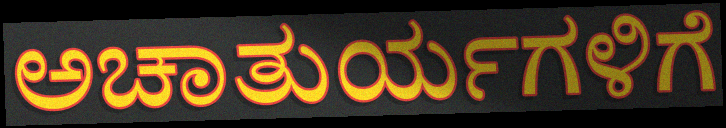
ಅಚಾತುರ್ಯಗಳಿಗೆ